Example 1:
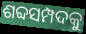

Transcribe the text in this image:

ଶବ୍ଦସମ୍ପଦକୁ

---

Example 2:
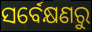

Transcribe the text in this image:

ସର୍ବେକ୍ଷଣରୁ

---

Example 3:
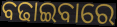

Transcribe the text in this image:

ବଢାଇବାରେ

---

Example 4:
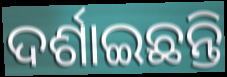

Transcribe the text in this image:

ଦର୍ଶାଇଛନ୍ତି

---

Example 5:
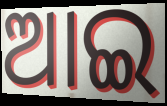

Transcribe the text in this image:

ଆଇ